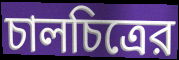
চালচিত্রের